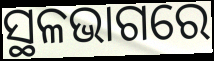
ସ୍ଥଳଭାଗରେ